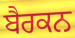
ਬੈਰਕਨ